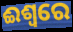
ଈଶ୍ଵରେ